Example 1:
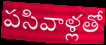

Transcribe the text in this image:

పసివాళ్లతో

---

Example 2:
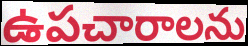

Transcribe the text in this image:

ఉపచారాలను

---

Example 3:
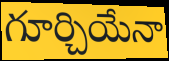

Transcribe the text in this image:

గూర్చియేనా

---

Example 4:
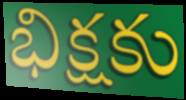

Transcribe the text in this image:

భిక్షకు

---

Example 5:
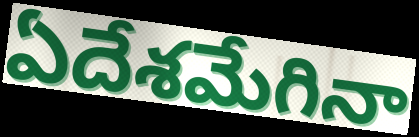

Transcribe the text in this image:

ఏదేశమేగినా